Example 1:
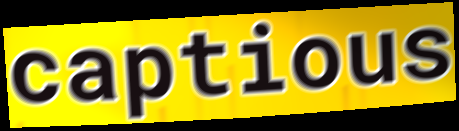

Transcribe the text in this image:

captious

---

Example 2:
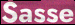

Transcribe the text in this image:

Sasse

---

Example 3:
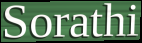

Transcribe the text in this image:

Sorathi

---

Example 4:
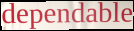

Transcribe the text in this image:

dependable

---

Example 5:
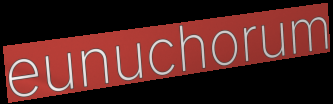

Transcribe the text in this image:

eunuchorum